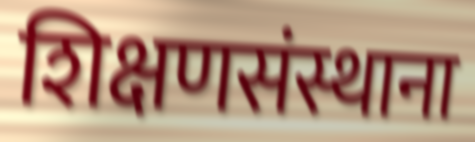
शिक्षणसंस्थाना